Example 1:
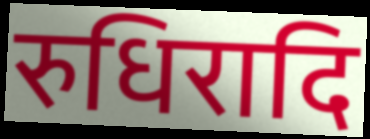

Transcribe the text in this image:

रुधिरादि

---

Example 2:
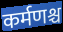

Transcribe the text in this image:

कर्मणश्च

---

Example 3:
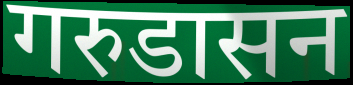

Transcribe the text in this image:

गरुडासन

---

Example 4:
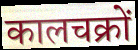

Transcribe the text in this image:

कालचक्रों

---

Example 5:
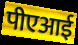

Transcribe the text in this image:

पीएआई